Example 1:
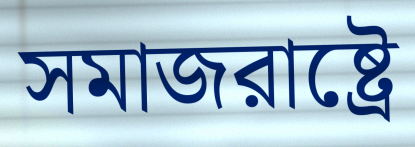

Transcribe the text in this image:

সমাজরাষ্ট্রে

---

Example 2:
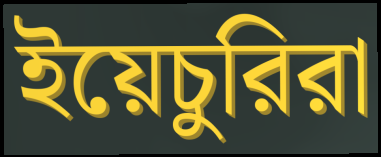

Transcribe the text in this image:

ইয়েচুরিরা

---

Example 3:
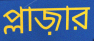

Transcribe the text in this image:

প্লাজ়ার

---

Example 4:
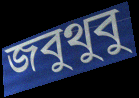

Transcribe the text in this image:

জবুথুবু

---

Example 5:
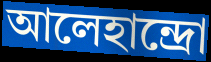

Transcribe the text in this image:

আলেহান্দ্রো